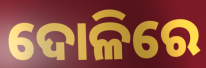
ଦୋଳିରେ